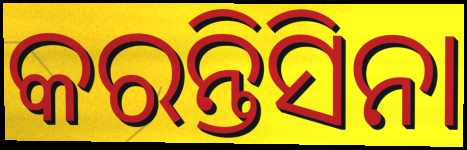
କରନ୍ତିସିନା